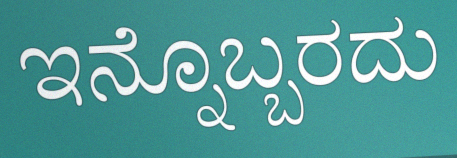
ಇನ್ನೊಬ್ಬರದು